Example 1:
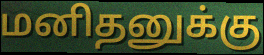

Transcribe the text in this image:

மனிதனுக்கு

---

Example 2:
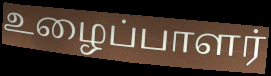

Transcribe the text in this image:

உழைப்பாளர்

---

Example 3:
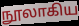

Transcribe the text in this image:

நூலாகிய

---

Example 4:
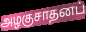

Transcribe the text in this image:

அழகுசாதனப்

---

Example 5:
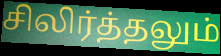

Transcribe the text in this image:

சிலிர்த்தலும்